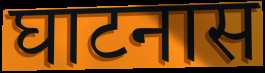
घाटनास